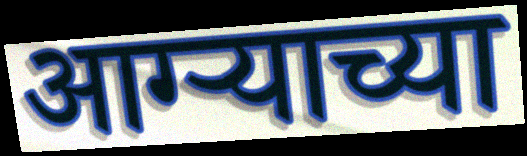
आग्ऱ्याच्या